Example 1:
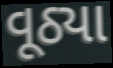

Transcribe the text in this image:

વૂઠ્યા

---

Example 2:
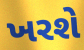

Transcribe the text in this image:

ખરશે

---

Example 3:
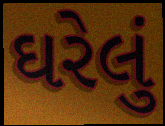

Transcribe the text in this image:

ઘરેલું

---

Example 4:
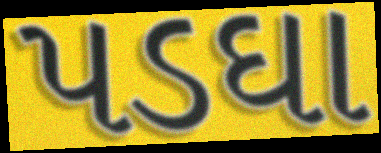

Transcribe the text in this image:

પડઘા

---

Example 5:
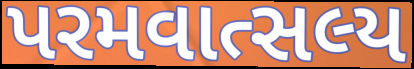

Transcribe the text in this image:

પરમવાત્સલ્ય